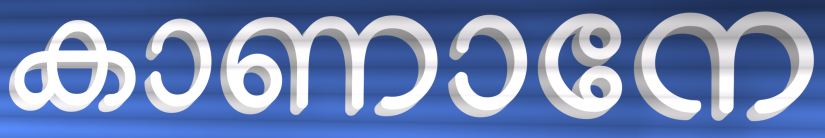
കാണാനേ